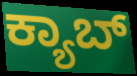
ಕ್ಯಾಬ್